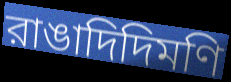
রাঙাদিদিমণি